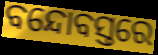
ବନ୍ଦୋବସ୍ତରେ